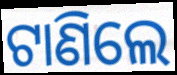
ଟାଣିଲେ